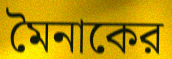
মৈনাকের